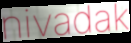
nivadak